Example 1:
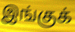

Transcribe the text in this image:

இங்குக்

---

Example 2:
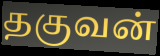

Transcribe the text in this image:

தகுவன்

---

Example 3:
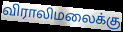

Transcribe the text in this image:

விராலிமலைக்கு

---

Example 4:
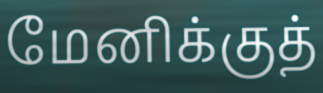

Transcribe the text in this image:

மேனிக்குத்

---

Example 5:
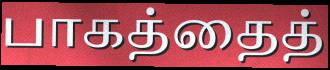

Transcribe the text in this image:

பாகத்தைத்